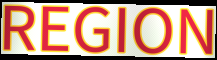
REGION